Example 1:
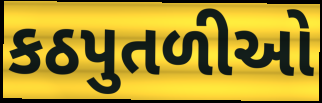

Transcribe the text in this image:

કઠપુતળીઓ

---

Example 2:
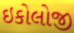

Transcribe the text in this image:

ઇકોલોજી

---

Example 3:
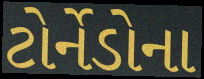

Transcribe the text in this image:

ટોર્નેડોના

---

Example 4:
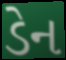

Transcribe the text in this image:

ડેન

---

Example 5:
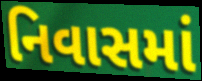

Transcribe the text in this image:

નિવાસમાં